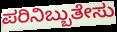
ಪರಿನಿಬ್ಬುತೇಸು